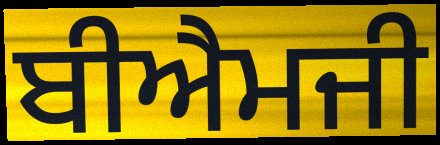
ਬੀਐਮਜੀ